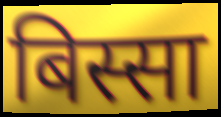
बिस्सा